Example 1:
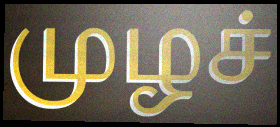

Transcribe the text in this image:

முழச்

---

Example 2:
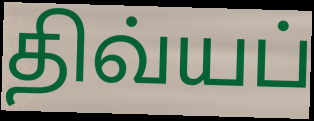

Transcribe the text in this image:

திவ்யப்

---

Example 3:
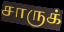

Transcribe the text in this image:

சாருக்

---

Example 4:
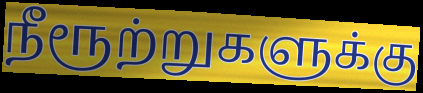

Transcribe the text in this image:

நீரூற்றுகளுக்கு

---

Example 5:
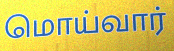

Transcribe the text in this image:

மொய்வார்